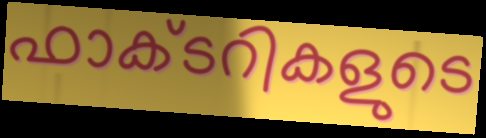
ഫാക്ടറികളുടെ